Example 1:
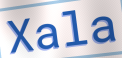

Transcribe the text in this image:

Xala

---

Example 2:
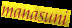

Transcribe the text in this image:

manasuni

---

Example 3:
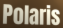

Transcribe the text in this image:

Polaris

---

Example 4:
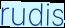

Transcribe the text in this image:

rudis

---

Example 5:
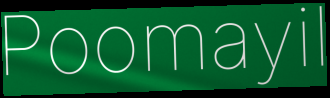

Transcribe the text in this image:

Poomayil